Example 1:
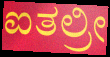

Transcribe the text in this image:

ಐತಲ್ರೀ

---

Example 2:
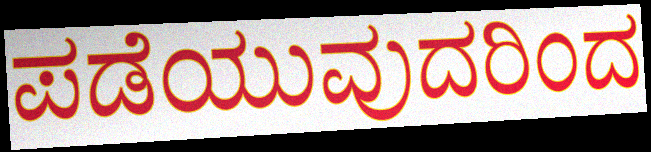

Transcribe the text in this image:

ಪಡೆಯುವುದರಿಂದ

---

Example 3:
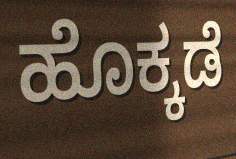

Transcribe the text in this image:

ಹೊಕ್ಕಡೆ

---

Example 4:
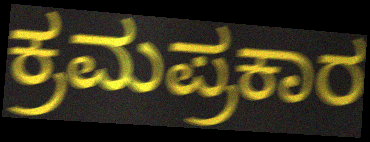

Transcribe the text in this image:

ಕ್ರಮಪ್ರಕಾರ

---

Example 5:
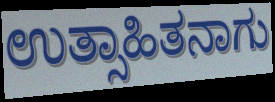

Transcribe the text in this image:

ಉತ್ಸಾಹಿತನಾಗು